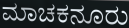
ಮಾಚಕನೂರು